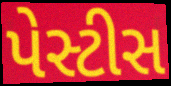
પેસ્ટીસ